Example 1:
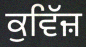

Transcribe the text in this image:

ਕੁਵਿੱਜ਼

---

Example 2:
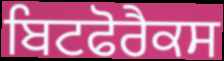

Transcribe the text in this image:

ਬਿਟਫੋਰੈਕਸ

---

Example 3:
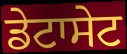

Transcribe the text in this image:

ਡੇਟਾਸੇਟ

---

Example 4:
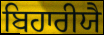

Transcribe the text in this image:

ਬਿਹਾਰੀਯੈ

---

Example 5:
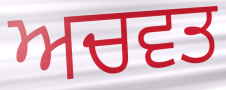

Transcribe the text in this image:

ਅਚਵਤ